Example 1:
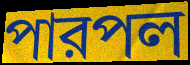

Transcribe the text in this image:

পারপল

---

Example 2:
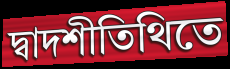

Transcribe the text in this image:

দ্বাদশীতিথিতে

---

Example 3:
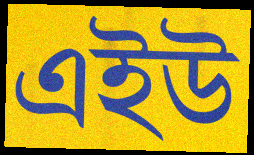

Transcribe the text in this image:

এইউ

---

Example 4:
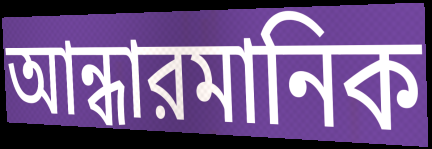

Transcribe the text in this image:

আন্ধারমানিক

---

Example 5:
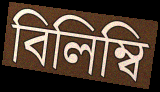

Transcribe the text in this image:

বিলিম্বি